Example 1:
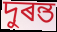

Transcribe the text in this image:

দুৰন্ত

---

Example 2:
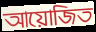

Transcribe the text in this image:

আয়োজিত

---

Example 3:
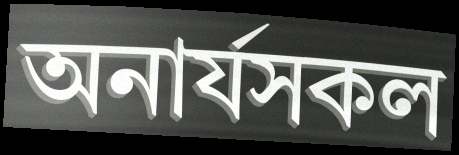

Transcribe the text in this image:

অনাৰ্যসকল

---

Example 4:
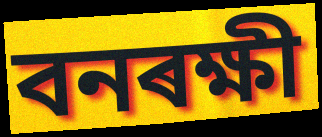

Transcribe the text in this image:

বনৰক্ষী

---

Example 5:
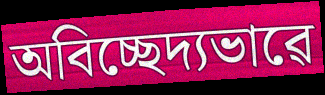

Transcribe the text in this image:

অবিচ্ছেদ্যভাৱে